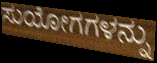
ಸುಯೋಗಗಳನ್ನು